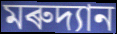
মৰুদ্যান